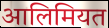
आलिमियत